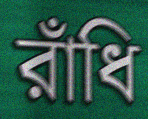
রাঁধি